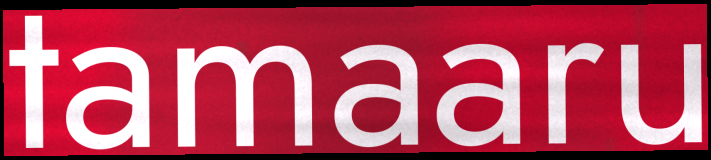
tamaaru